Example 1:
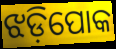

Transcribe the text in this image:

ଝଡ଼ିପୋକ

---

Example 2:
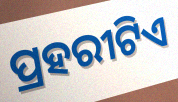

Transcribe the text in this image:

ପ୍ରହରୀଟିଏ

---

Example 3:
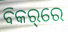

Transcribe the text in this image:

ବିକର୍‌ରେ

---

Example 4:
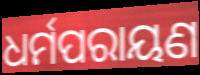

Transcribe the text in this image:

ଧର୍ମପରାୟଣ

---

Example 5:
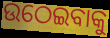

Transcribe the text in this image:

ଉଠେଇବାକୁ